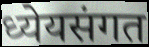
ध्येयसंगत